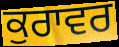
ਕੁਰਾਵਰ